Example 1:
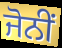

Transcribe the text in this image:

ਜੋਨੀਂ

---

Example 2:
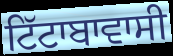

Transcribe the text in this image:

ਟਿੱਟਾਬਾਵਾਸੀ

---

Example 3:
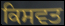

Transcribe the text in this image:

ਕਿਸਵਤ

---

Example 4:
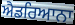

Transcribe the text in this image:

ਐਡਰਿਆਨਾ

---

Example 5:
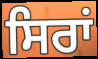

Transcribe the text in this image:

ਸਿਰਾਂ